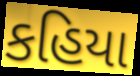
કહિયા